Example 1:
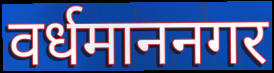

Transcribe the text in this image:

वर्धमाननगर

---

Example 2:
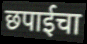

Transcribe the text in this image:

छपाईचा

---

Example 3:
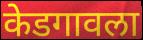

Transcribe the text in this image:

केडगावला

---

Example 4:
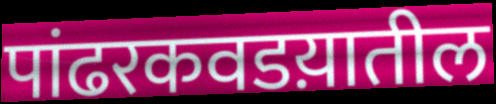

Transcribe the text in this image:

पांढरकवडय़ातील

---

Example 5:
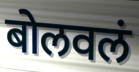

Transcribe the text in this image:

बोलवलं